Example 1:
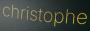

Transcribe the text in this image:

christophe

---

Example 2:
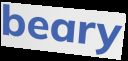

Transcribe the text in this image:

beary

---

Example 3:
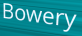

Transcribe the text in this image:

Bowery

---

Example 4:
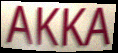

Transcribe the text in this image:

AKKA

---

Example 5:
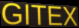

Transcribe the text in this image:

GITEX